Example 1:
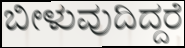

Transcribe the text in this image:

ಬೀಳುವುದಿದ್ದರೆ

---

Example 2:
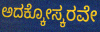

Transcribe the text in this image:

ಅದಕ್ಕೋಸ್ಕರವೇ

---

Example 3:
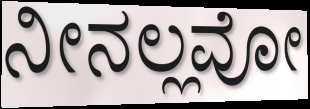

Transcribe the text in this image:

ನೀನಲ್ಲವೋ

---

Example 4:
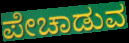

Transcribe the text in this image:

ಪೇಚಾಡುವ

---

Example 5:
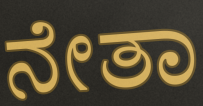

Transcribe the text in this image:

ನೇತಾ